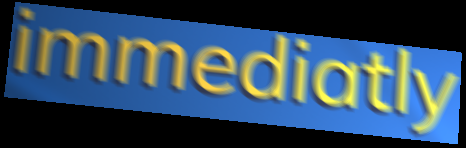
immediatly